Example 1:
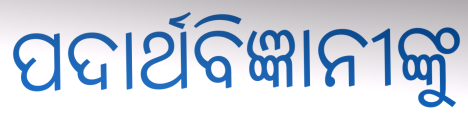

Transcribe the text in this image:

ପଦାର୍ଥବିଜ୍ଞାନୀଙ୍କୁ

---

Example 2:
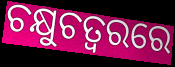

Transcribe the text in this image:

ଚକ୍ଷୁଚତ୍ୱରରେ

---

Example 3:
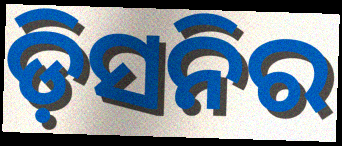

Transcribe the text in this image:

ଡ଼ିସନିର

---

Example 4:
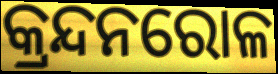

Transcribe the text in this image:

କ୍ରନ୍ଦନରୋଳ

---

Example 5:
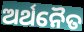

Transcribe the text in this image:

ଅର୍ଥନୈତ